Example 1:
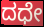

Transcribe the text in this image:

ದಧೇ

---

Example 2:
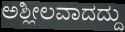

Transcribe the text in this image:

ಅಶ್ಲೀಲವಾದದ್ದು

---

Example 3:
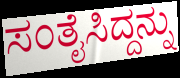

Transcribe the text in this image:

ಸಂತೈಸಿದ್ದನ್ನು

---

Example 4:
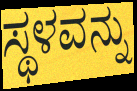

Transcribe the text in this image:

ಸ್ಥಳವನ್ನು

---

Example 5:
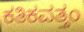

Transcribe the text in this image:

ಕತಿಕವತ್ತಂ